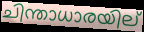
ചിന്താധാരയില്